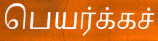
பெயர்க்கச்